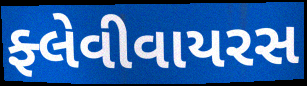
ફ્લેવીવાયરસ